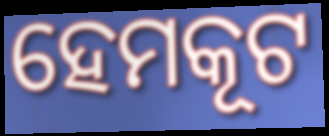
ହେମକୂଟ